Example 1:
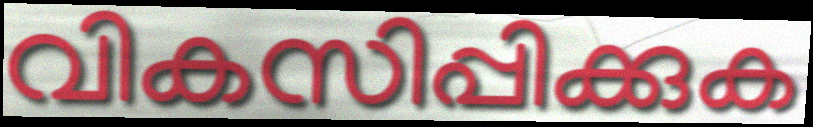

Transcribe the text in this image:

വികസിപ്പിക്കുക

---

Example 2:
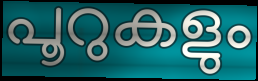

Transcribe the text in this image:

പൂറുകളും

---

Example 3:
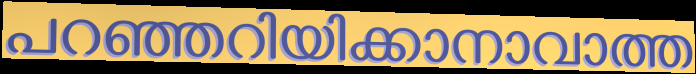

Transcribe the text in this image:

പറഞ്ഞറിയിക്കാനാവാത്ത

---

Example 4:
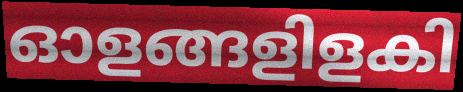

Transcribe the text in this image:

ഓളങ്ങളിളകി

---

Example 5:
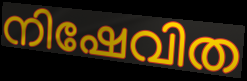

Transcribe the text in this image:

നിഷേവിത